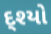
દ્શ્યો